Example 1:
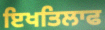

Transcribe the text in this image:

ਇਖਤਿਲਾਫ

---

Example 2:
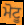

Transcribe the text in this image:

ਮੋਟੂ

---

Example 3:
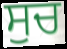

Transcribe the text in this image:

ਸੁਚ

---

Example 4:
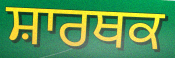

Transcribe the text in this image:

ਸ਼ਾਰਥਕ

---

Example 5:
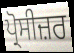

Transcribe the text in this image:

ਪ੍ਰੋਸੀਜ਼ਰ